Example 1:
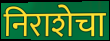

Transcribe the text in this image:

निराशेचा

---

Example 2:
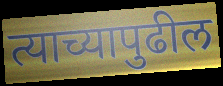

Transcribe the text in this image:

त्याच्यापुढील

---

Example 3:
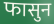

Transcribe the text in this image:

फासुन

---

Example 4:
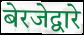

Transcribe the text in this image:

बेरजेद्वारे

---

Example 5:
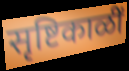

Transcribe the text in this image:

सृष्टिकाळीं